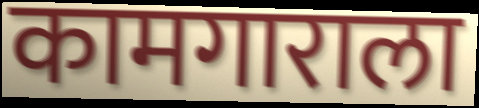
कामगाराला